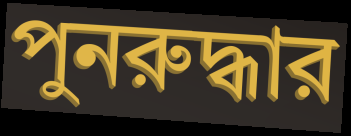
পুনরুদ্ধার